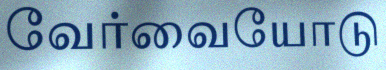
வேர்வையோடு